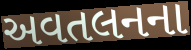
અવતલનના